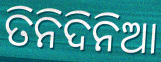
ତିନିଦିନିଆ